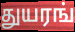
துயரங்